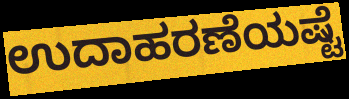
ಉದಾಹರಣೆಯಷ್ಟೆ